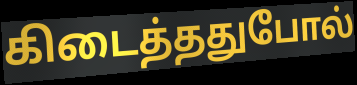
கிடைத்ததுபோல்